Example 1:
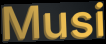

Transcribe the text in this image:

Musi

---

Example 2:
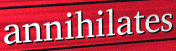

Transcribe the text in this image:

annihilates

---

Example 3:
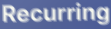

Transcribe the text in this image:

Recurring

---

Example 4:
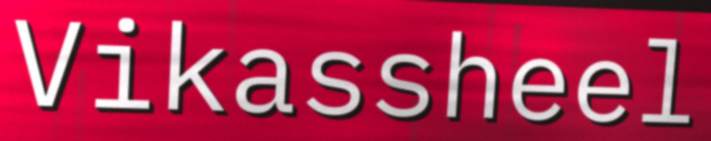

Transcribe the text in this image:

Vikassheel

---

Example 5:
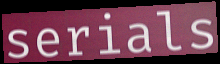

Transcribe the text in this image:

serials